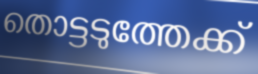
തൊട്ടടുത്തേക്ക്